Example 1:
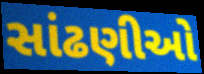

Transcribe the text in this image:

સાંઢણીઓ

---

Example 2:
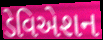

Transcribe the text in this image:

ડેવિએશન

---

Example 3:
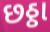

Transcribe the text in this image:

છઠ્ઠા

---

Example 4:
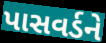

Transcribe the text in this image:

પાસવર્ડને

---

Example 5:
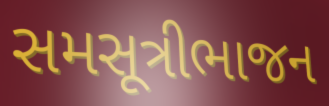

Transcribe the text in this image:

સમસૂત્રીભાજન